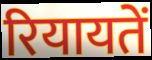
रियायतें